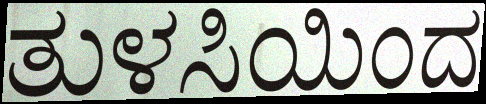
ತುಳಸಿಯಿಂದ